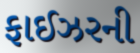
ફાઈઝરની